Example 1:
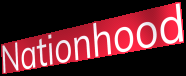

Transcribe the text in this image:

Nationhood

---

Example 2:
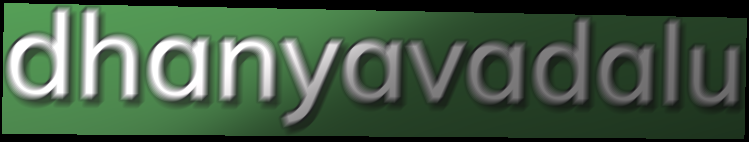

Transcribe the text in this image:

dhanyavadalu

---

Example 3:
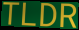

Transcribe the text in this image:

TLDR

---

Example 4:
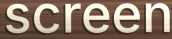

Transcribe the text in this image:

screen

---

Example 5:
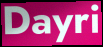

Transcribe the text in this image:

Dayri